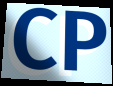
CP